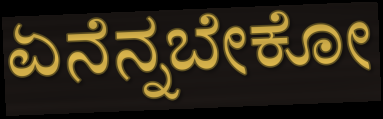
ಏನೆನ್ನಬೇಕೋ